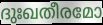
ദുഃഖതീരമോ